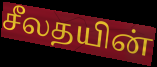
சீலதயின்